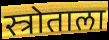
स्त्रोताला